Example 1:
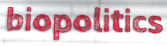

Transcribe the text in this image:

biopolitics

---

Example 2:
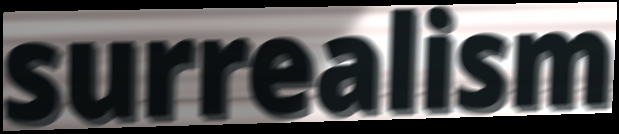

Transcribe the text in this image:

surrealism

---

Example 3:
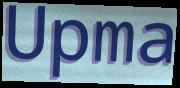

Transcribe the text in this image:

Upma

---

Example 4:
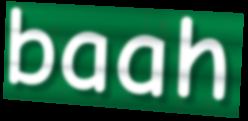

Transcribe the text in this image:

baah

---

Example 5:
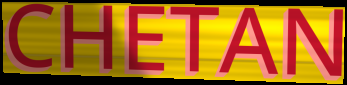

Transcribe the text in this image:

CHETAN